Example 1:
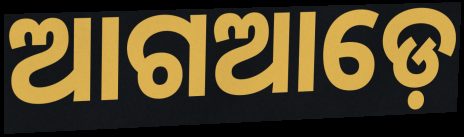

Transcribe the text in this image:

ଆଗଆଡ଼େ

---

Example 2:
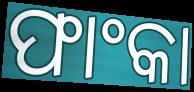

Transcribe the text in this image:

ଫାଂକା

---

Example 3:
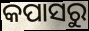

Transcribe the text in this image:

କପାସରୁ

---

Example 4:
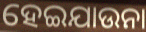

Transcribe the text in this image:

ହେଇଯାଉନା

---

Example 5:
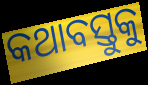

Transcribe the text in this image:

କଥାବସ୍ତୁକୁ